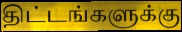
திட்டங்களுக்கு